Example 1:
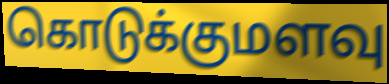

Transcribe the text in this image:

கொடுக்குமளவு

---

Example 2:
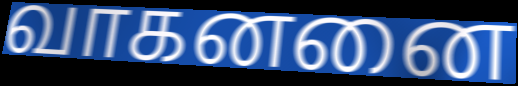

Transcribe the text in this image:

வாகனனை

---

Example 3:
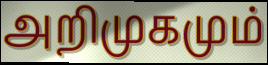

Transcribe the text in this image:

அறிமுகமும்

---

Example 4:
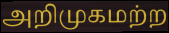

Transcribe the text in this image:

அறிமுகமற்ற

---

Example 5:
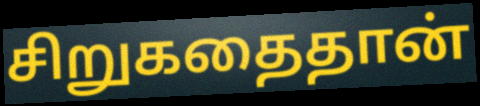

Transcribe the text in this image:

சிறுகதைதான்